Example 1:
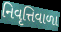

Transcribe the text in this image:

નિવૃત્તિવાળા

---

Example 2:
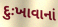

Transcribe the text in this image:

દુઃખાવાનાં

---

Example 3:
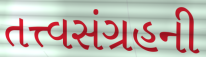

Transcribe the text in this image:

તત્ત્વસંગ્રહની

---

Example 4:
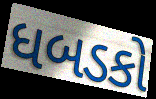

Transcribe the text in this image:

ધબડકો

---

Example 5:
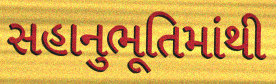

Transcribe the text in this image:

સહાનુભૂતિમાંથી